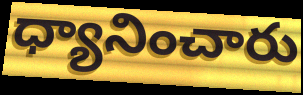
ధ్యానించారు